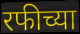
रफीच्या